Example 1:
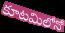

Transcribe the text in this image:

కూటమిలోనో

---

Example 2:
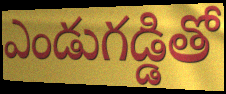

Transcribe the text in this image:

ఎండుగడ్డితో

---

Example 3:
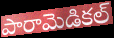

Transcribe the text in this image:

పారామెడికల్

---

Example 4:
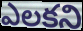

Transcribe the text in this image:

ఎలకని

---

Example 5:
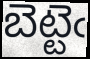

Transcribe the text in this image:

బెట్టెఁ